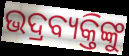
ଭଦ୍ରବ୍ୟକ୍ତିଙ୍କୁ